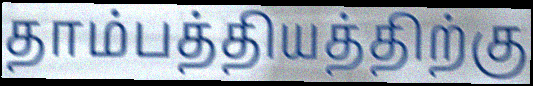
தாம்பத்தியத்திற்கு